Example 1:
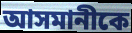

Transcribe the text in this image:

আসমানীকে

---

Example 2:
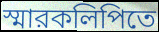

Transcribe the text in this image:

স্মারকলিপিতে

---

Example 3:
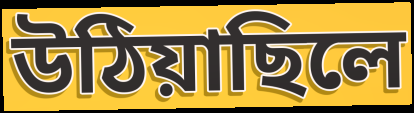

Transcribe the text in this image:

উঠিয়াছিলে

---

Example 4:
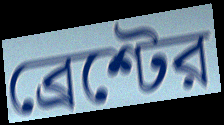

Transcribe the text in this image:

ব্রেশ্টের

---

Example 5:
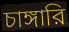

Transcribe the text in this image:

চাঙ্গারি